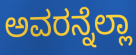
ಅವರನ್ನೆಲ್ಲಾ